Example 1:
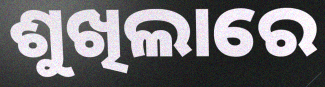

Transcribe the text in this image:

ଶୁଖିଲାରେ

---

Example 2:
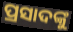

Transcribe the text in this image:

ପ୍ରସାଦଙ୍କୁ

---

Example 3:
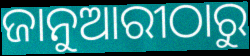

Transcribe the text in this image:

ଜାନୁଆରୀଠାରୁ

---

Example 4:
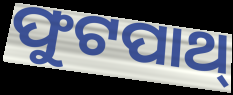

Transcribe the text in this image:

ଫୁଟପାଥ୍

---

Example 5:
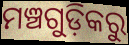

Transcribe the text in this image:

ମଞ୍ଚଗୁଡ଼ିକରୁ